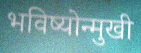
भविष्योन्मुखी